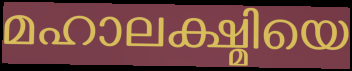
മഹാലക്ഷ്മിയെ